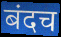
बंदच